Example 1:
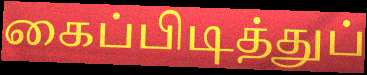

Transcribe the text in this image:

கைப்பிடித்துப்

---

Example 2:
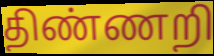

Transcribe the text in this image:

திண்ணறி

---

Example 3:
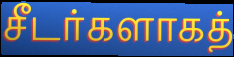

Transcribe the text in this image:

சீடர்களாகத்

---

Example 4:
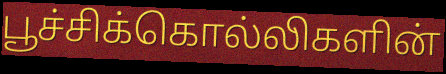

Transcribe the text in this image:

பூச்சிக்கொல்லிகளின்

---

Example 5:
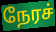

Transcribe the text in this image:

நேரச்